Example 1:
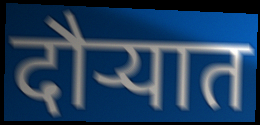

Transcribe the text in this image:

दौऱ्यात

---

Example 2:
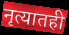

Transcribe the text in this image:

नृत्यातही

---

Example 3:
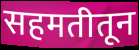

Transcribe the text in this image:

सहमतीतून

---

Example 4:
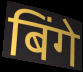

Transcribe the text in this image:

बिंगे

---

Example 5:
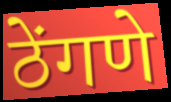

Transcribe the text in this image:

ठेंगणे